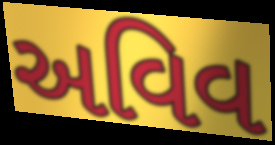
અવિવ